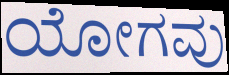
ಯೋಗವು